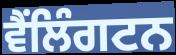
ਵੈਂਲਿੰਗਟਨ